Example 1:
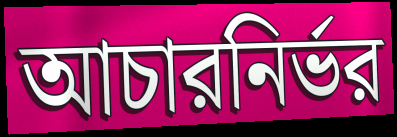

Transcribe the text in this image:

আচারনির্ভর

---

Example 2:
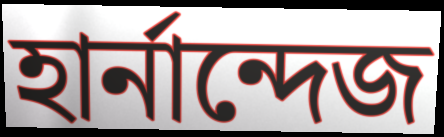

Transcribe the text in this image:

হার্নান্দেজ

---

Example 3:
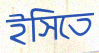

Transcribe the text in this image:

ইসিতে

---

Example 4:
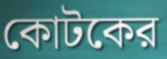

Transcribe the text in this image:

কোটকের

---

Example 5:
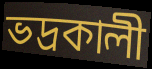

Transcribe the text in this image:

ভদ্রকালী